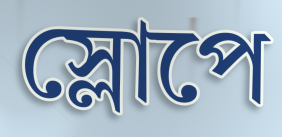
স্লোপে